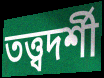
তত্ত্বদর্শী